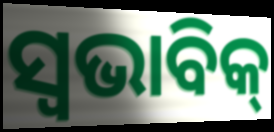
ସ୍ୱଭାବିକ୍